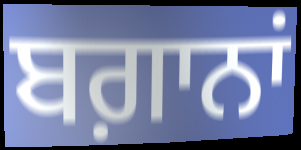
ਬਗ਼ਾਨਾਂ